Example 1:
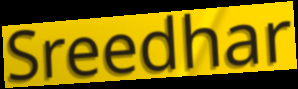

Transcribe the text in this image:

Sreedhar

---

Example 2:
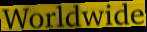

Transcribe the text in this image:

Worldwide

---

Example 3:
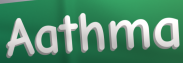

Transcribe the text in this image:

Aathma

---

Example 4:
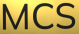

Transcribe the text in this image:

MCS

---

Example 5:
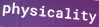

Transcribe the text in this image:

physicality